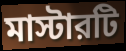
মাস্টারটি